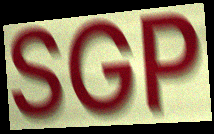
SGP